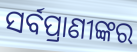
ସର୍ବପ୍ରାଣୀଙ୍କର